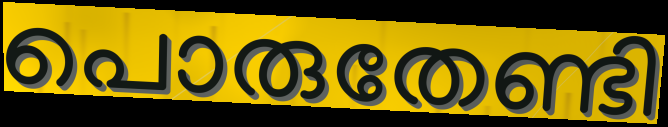
പൊരുതേണ്ടി